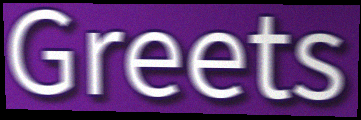
Greets